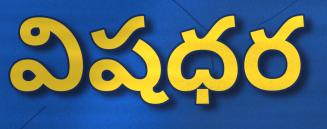
విషధర